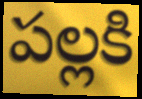
పల్లకి